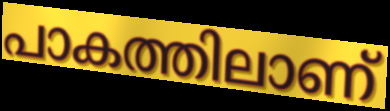
പാകത്തിലാണ്